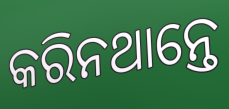
କରିନଥାନ୍ତେ